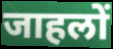
जाहलों